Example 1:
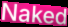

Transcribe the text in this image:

Naked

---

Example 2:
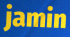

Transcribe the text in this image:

jamin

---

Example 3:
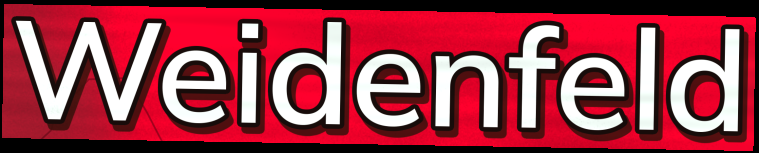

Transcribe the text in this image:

Weidenfeld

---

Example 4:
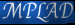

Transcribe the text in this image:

MPLAD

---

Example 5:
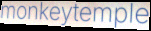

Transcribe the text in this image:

monkeytemple